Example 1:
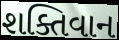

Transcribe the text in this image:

શક્તિવાન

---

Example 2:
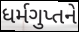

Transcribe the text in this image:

ધર્મગુપ્તને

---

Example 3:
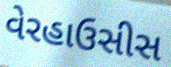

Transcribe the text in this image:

વેરહાઉસીસ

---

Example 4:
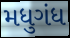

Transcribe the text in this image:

મધુગંધ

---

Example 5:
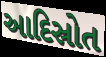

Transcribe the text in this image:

આદિસ્રોત